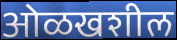
ओळखशील